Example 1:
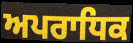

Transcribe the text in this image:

ਅਪਰਾਧਿਕ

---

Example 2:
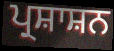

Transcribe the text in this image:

ਪ੍ਰਸ਼ਾਸ਼ਨ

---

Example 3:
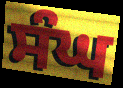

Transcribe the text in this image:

ਸੰਘ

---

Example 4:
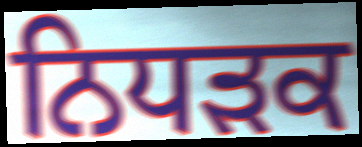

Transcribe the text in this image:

ਨਿਧਡ਼ਕ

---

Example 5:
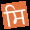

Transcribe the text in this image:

ਸਿ